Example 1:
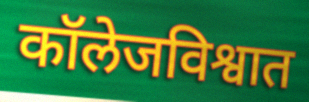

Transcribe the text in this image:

कॉलेजविश्वात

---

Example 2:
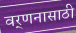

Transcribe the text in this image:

वर्णनासाठी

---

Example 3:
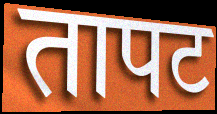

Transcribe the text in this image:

तापट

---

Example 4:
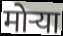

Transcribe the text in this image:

मोर्‍या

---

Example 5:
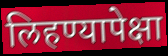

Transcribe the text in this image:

लिहण्यापेक्षा